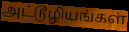
அட்டூழியங்கள்